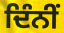
ਦਿੰਨੀਂ